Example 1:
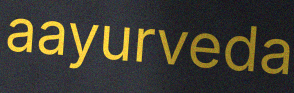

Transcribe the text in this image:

aayurveda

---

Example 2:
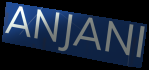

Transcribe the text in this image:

ANJANI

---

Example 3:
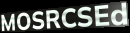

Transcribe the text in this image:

MOSRCSEd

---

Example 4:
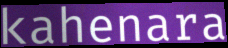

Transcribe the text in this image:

kahenara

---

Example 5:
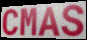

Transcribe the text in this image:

CMAS